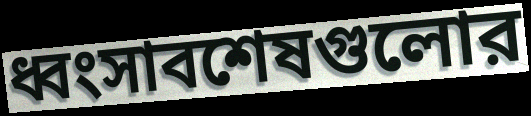
ধ্বংসাবশেষগুলোর